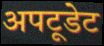
अपटूडेट